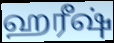
ஹரீஷ்